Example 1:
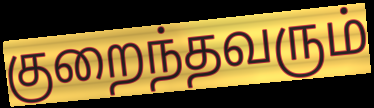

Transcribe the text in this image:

குறைந்தவரும்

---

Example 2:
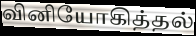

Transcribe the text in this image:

வினியோகித்தல்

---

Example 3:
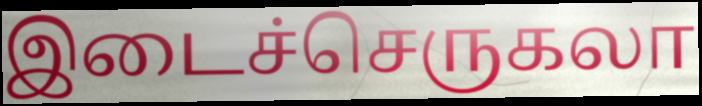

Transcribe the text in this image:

இடைச்செருகலா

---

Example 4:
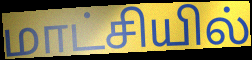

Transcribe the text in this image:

மாட்சியில்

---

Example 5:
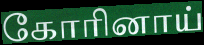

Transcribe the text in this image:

கோரினாய்